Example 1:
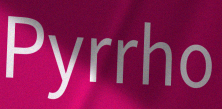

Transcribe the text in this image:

Pyrrho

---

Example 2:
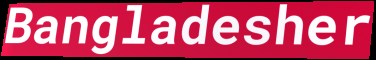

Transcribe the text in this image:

Bangladesher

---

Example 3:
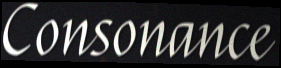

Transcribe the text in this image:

Consonance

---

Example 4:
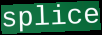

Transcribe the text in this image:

splice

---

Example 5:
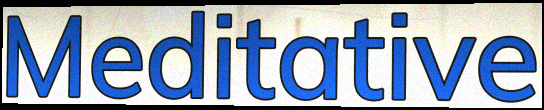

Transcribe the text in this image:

Meditative